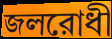
জলরোধী